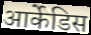
आर्केडिस